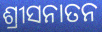
ଶ୍ରୀସନାତନ